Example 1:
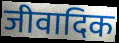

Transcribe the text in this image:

जीवादिक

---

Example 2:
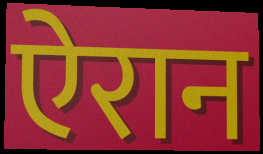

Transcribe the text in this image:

ऐरान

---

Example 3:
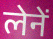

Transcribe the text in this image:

लेनें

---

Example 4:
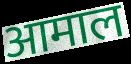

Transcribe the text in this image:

आमाल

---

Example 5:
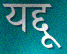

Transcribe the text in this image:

यद्दू